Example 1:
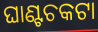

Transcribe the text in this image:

ଘାଣ୍ଟଚକଟା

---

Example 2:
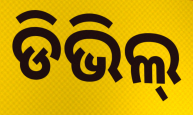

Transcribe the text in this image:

ଡିଭିଲ୍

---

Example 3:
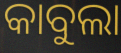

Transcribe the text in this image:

କାବୁଲା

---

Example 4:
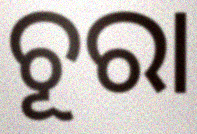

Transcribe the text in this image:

ଚୂରା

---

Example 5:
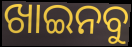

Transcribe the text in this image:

ଖାଇନବୁ